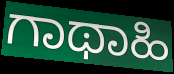
ಗಾಥಾಹಿ